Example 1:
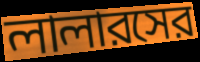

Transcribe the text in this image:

লালারসের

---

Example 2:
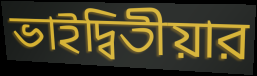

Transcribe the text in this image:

ভাইদ্বিতীয়ার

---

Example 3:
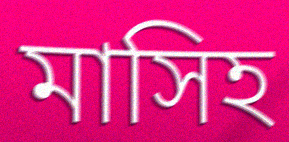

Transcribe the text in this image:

মাসিহ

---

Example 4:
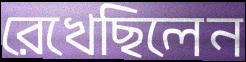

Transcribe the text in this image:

রেখেছিলেন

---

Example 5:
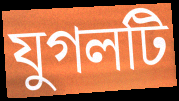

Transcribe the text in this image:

যুগলটি